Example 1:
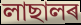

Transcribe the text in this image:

লাছালৰ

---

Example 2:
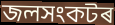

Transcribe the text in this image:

জলসংকটৰ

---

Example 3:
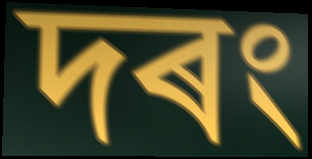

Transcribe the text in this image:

দৰং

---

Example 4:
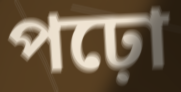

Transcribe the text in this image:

পঢ়ো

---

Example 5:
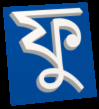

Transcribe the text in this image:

ফু